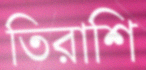
তিরাশি